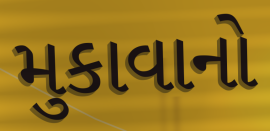
મુકાવાનો